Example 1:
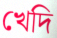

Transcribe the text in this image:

খেদি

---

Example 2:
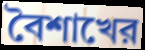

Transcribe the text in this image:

বৈশাখের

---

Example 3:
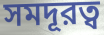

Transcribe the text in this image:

সমদূরত্ব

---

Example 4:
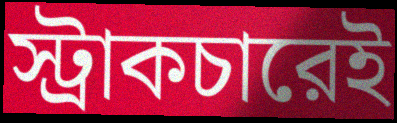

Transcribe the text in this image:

স্ট্রাকচারেই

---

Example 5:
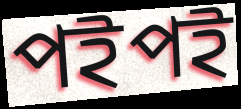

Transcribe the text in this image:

পইপই